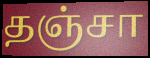
தஞ்சா